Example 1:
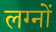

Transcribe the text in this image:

लग्नों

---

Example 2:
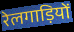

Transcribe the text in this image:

रेलगाड़ियों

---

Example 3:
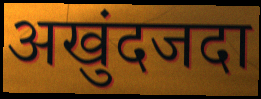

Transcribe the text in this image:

अखुंदजदा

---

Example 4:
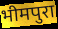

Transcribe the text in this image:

भीमपुरा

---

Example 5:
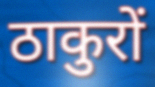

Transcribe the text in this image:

ठाकुरों